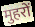
मुहरों